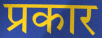
प्रकार